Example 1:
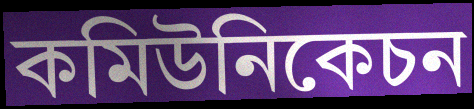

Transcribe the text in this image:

কমিউনিকেচন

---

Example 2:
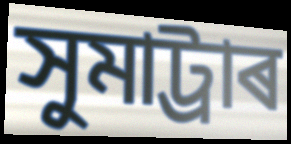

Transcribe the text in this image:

সুমাট্ৰাৰ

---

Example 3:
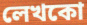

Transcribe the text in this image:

লেখকো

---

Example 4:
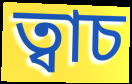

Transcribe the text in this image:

ত্বাচ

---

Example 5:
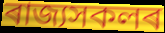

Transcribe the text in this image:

ৰাজ্যসকলৰ